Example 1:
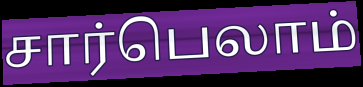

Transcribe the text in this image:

சார்பெலாம்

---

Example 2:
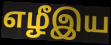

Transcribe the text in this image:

எழீஇய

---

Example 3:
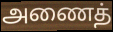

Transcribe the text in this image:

அணைத்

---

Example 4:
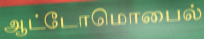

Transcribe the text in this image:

ஆட்டோமொபைல்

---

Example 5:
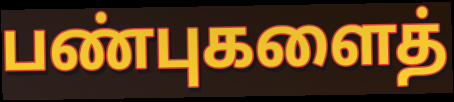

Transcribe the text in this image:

பண்புகளைத்